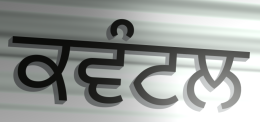
ਕਵੰਟਲ